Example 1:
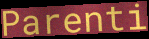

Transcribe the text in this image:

Parenti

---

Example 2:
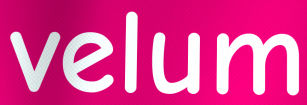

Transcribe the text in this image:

velum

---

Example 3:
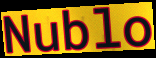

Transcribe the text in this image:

Nublo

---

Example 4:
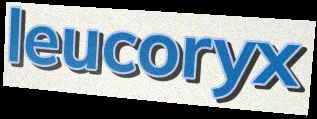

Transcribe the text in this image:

leucoryx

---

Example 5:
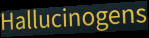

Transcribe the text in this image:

Hallucinogens